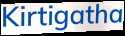
Kirtigatha